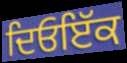
ਦਿਓਇੱਕ